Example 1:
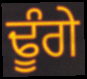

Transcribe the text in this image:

ਢੂੰਗੇ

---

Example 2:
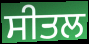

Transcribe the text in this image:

ਸੀਤਲ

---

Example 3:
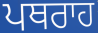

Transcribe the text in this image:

ਪਥਰਾਹ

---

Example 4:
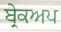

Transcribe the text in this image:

ਬ੍ਰੇਕਅਪ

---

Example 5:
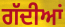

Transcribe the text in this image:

ਗੱਦੀਆਂ